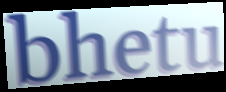
bhetu